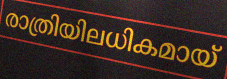
രാത്രിയിലധികമായ്